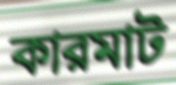
কারমাট